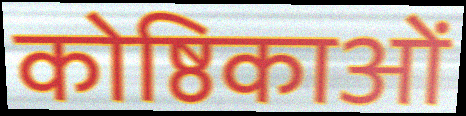
कोष्ठिकाओं